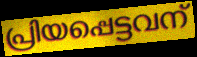
പ്രിയപ്പെട്ടവന്